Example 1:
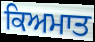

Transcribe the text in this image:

ਕਿਅਮਾਤ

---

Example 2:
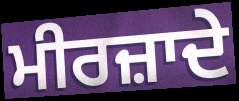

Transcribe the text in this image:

ਮੀਰਜ਼ਾਦੇ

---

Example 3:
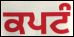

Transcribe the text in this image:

ਕਪਟੰ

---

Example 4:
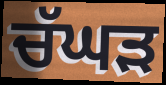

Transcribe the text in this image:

ਚੱਘੜ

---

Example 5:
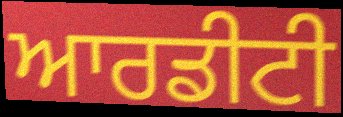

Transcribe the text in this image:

ਆਰਡੀਟੀ